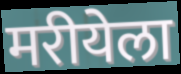
मरीयेला